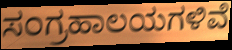
ಸಂಗ್ರಹಾಲಯಗಳಿವೆ